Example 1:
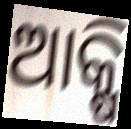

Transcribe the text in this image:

ଆକ୍ଷି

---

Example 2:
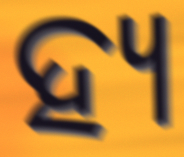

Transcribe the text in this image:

ହ୍ୟ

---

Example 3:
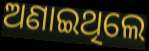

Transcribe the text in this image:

ଅଣାଇଥିଲେ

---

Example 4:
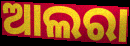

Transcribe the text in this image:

ଆଲରା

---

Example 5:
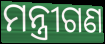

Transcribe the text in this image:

ମନ୍ତ୍ରୀଗଣ